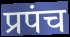
प्रपंच